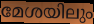
മേശയിലും